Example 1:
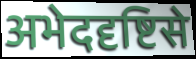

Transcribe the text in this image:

अभेददृष्टिसे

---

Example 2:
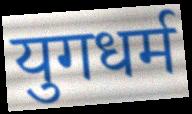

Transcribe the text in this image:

युगधर्म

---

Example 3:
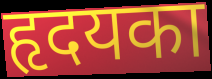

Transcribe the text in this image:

हृदयका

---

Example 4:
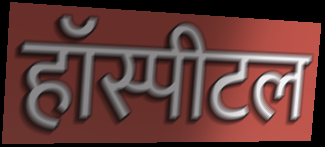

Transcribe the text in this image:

हॉस्पीटल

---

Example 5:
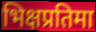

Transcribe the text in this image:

भिक्षप्रतिमा